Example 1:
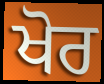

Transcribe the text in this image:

ਖੋਰ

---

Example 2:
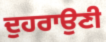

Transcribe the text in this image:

ਦੁਹਰਾਉਣੀ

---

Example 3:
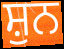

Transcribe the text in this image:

ਸ਼ੁਨ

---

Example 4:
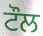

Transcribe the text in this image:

ਟੌਲ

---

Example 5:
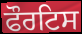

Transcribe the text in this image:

ਫੌਰਟਿਸ